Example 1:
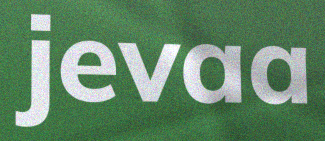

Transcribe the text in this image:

jevaa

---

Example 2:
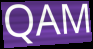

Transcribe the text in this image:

QAM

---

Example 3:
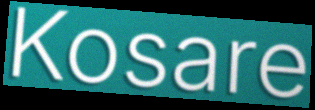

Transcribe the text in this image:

Kosare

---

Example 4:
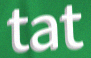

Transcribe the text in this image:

tat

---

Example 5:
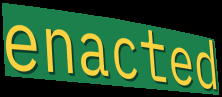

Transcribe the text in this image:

enacted